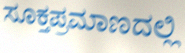
ಸೂಕ್ತಪ್ರಮಾಣದಲ್ಲಿ